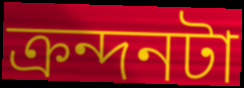
ক্রন্দনটা